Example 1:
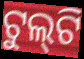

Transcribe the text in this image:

ଟୁଲ୍‌ଟି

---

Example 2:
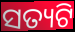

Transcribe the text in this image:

ସତ୍ୟଟି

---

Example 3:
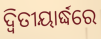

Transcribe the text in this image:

ଦ୍ଵିତୀୟାର୍ଦ୍ଧରେ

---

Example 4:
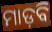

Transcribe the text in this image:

ମାଡ଼ବି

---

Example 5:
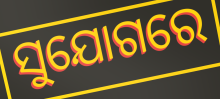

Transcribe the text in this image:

ସୁଯୋଗରେ